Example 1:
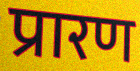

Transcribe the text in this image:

प्रारण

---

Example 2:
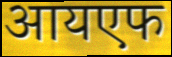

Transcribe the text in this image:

आयएफ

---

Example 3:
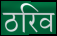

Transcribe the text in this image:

ठरिव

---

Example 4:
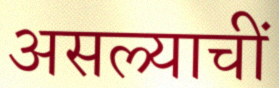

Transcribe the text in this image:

असल्याचीं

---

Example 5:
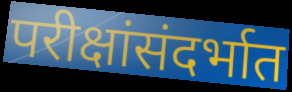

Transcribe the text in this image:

परीक्षांसंदर्भात